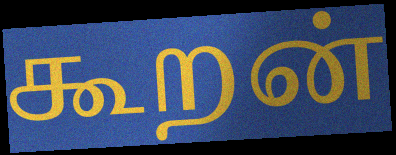
கூறன்